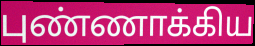
புண்ணாக்கிய